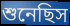
শুনেছিস